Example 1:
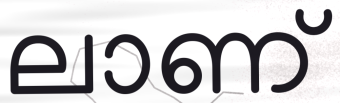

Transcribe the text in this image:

ലാണ്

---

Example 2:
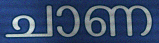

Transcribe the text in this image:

ചാണ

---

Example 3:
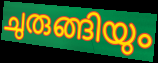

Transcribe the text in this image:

ചുരുങ്ങിയും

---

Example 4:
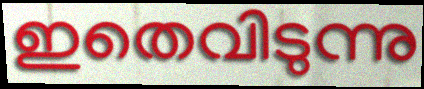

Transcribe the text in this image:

ഇതെവിടുന്നു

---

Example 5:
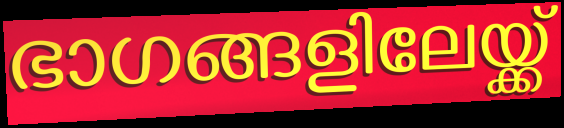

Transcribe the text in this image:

ഭാഗങ്ങളിലേയ്ക്ക്